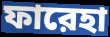
ফারেহা